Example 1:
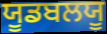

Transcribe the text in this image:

ਯੂਡਬਲਯੂ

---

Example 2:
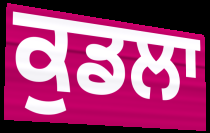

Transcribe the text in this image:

ਕੁਡਲਾ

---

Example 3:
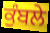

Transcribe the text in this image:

ਕੁੰਬਲੇ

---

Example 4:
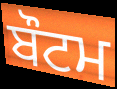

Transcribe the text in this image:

ਬੌਟਮ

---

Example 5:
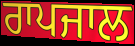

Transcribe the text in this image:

ਰਾਪਜਾਲ